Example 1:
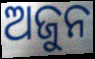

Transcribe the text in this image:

ଅଜୁନ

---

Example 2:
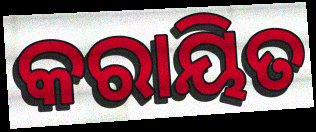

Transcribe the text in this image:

କରାୟିତ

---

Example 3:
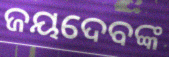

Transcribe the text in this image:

ଜୟଦେବଙ୍କ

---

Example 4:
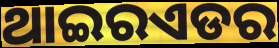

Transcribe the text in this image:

ଥାଇରଏଡର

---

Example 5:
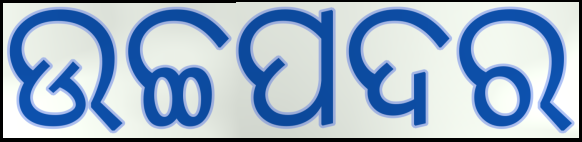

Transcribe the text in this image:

ଉଚ୍ଚପଦର